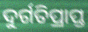
ଦୁର୍ଗତିପ୍ରାପ୍ତ